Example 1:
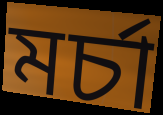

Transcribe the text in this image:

মৰ্চা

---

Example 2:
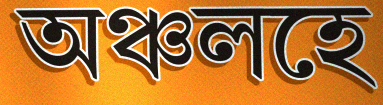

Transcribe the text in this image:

অঞ্চলহে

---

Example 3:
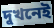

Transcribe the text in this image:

দুখনেই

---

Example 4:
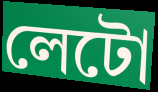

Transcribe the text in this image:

লেটো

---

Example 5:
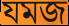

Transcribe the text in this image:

যমজ